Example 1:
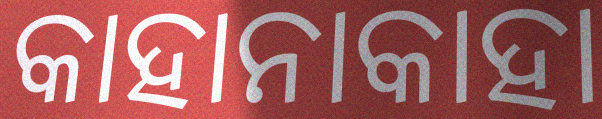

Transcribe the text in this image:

କାହାନାକାହା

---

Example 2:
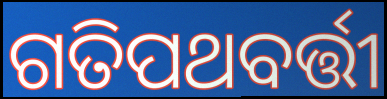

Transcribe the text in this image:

ଗତିପଥବର୍ତ୍ତୀ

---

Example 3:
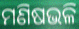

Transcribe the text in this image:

ମଣିଷଭଳି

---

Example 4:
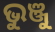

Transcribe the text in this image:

ଭୁଞ୍ଜୁ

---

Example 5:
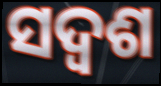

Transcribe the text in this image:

ସଦ୍ଵଶ